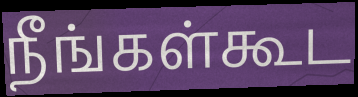
நீங்கள்கூட